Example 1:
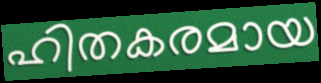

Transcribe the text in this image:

ഹിതകരമായ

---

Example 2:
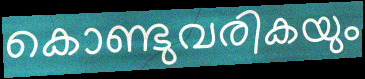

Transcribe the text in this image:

കൊണ്ടുവരികയും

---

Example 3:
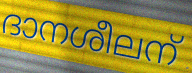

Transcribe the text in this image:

ദാനശീലന്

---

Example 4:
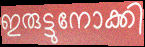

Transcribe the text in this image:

ഇരുട്ടുനോക്കി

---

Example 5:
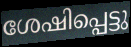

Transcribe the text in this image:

ശേഷിപ്പെട്ടു